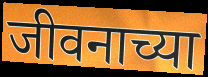
जीवनाच्या